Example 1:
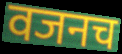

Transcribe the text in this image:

वजनच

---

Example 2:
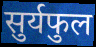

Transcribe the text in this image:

सुर्यफुल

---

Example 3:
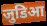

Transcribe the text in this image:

जुडिआ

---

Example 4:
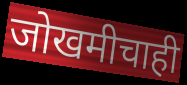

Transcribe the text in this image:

जोखमीचाही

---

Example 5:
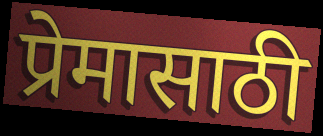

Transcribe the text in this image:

प्रेमासाठी